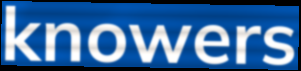
knowers